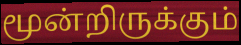
மூன்றிருக்கும்